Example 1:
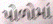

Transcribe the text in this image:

પોળોમાં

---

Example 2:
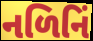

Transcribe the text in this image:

નળિનિં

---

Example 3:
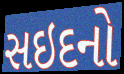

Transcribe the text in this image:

સઇદનો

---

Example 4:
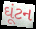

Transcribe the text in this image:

ઘૂંટન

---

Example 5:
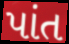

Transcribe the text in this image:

પાંત